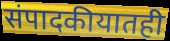
संपादकीयातही